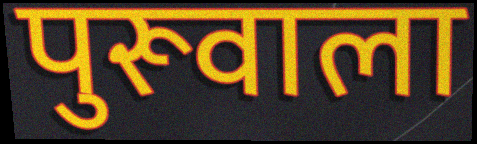
पुरूवाला